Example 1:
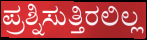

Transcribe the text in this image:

ಪ್ರಶ್ನಿಸುತ್ತಿರಲಿಲ್ಲ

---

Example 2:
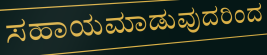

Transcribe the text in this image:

ಸಹಾಯಮಾಡುವುದರಿಂದ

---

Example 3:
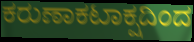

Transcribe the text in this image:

ಕರುಣಾಕಟಾಕ್ಷದಿಂದ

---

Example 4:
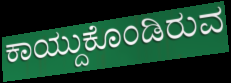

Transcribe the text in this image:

ಕಾಯ್ದುಕೊಂಡಿರುವ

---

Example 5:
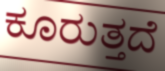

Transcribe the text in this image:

ಕೂರುತ್ತದೆ